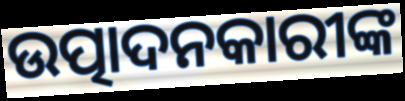
ଉତ୍ପାଦନକାରୀଙ୍କ